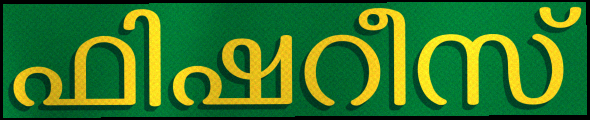
ഫിഷറീസ്